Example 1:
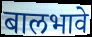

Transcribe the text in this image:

बालभावे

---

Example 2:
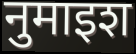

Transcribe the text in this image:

नुमाइश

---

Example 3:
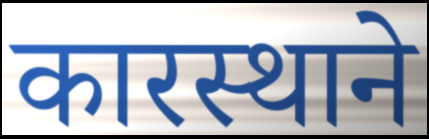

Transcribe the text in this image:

कारस्थाने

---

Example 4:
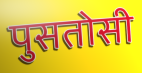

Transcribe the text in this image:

पुसतोसी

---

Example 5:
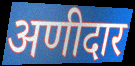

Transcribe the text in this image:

अणीदार